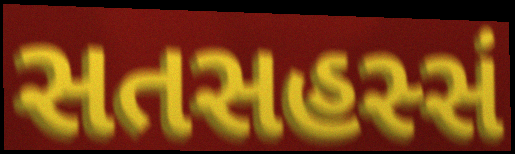
સતસહસ્સં